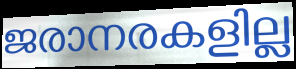
ജരാനരകളില്ല